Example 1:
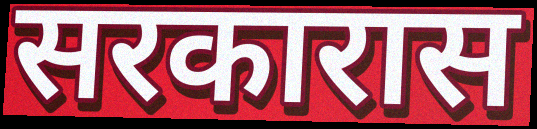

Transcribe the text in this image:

सरकारास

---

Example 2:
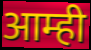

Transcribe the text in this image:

आम्‍ही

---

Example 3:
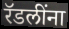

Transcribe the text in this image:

रॅडलींना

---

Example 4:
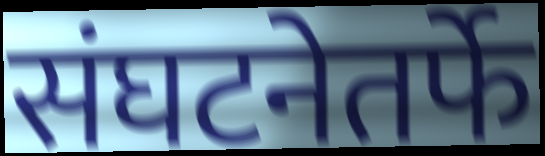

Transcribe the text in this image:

संघटनेतर्फे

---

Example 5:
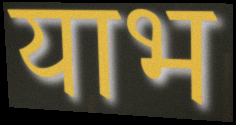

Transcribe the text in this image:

याभ